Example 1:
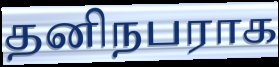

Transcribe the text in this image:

தனிநபராக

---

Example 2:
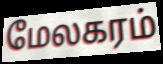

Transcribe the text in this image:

மேலகரம்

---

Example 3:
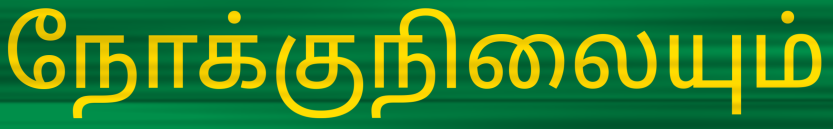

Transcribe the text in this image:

நோக்குநிலையும்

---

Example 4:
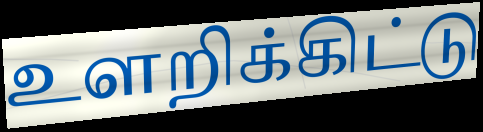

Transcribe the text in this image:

உளறிக்கிட்டு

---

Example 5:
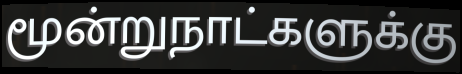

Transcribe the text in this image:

மூன்றுநாட்களுக்கு